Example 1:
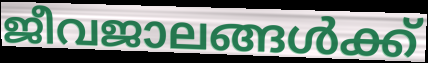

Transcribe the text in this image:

ജീവജാലങ്ങൾക്ക്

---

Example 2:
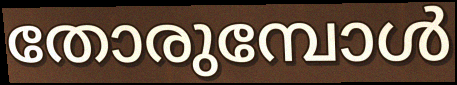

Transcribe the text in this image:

തോരുമ്പോൾ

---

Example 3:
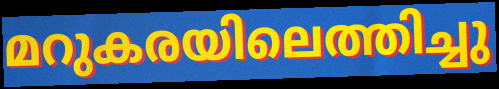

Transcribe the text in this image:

മറുകരയിലെത്തിച്ചു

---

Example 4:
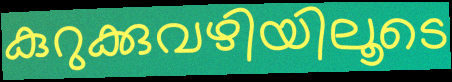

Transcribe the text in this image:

കുറുക്കുവഴിയിലൂടെ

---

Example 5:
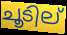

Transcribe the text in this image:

ചൂടില്